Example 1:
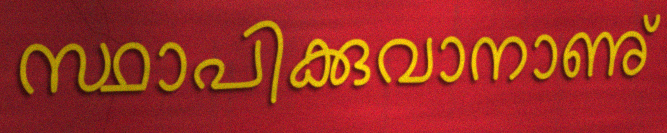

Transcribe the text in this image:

സ്ഥാപിക്കുവാനാണു്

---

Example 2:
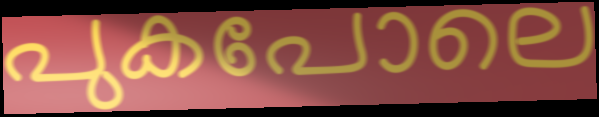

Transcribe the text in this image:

പുകപോലെ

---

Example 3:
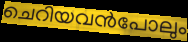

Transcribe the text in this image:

ചെറിയവൻപോലും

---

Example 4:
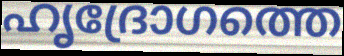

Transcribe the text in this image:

ഹൃദ്രോഗത്തെ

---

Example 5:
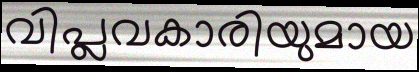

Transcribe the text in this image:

വിപ്ലവകാരിയുമായ